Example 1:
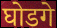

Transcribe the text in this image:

घोडगे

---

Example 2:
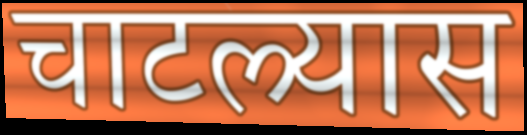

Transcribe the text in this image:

चाटल्यास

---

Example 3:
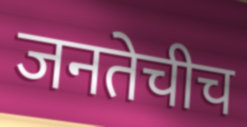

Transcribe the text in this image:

जनतेचीच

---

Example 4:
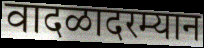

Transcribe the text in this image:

वादळादरम्यान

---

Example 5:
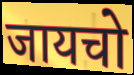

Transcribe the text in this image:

जायचो